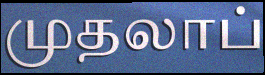
முதலாப்